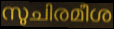
സുചിരമീശ